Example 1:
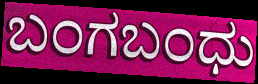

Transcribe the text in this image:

ಬಂಗಬಂಧು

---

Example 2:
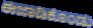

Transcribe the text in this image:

ಈಜಾಡಿಕೊಂಡು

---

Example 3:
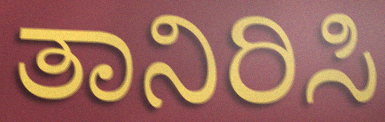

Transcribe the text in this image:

ತಾನಿರಿಸಿ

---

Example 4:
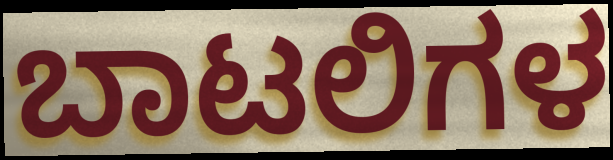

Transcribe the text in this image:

ಬಾಟಲಿಗಳ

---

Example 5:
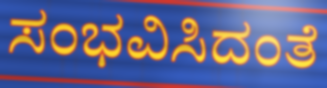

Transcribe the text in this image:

ಸಂಭವಿಸಿದಂತೆ